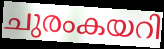
ചുരംകയറി